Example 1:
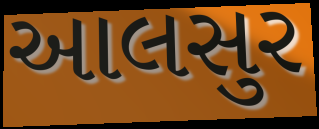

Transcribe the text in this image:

આલસુર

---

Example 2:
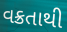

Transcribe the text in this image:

વક્રતાથી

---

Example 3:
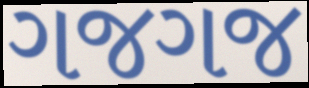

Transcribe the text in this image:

ગજગજ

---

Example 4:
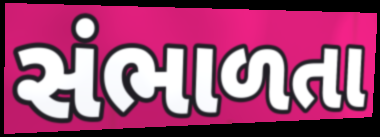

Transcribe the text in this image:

સંભાળતા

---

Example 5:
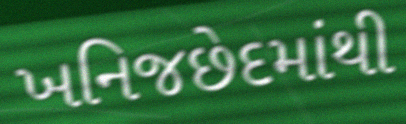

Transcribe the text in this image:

ખનિજછેદમાંથી